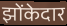
झोंकेदार